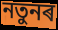
নতুনৰ